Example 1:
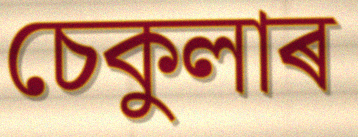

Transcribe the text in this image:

চেকুলাৰ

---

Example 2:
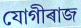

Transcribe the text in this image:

যোগীৰাজ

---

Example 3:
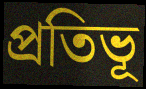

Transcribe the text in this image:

প্ৰতিভূ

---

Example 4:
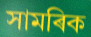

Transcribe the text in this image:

সামৰিক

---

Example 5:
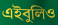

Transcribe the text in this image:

এইবুলিও